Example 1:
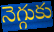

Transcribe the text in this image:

నెగ్గుకు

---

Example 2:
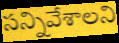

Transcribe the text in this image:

సన్నివేశాలని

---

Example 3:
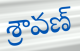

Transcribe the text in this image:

శ్రావణ్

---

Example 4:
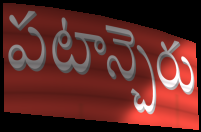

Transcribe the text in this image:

పటాన్చెరు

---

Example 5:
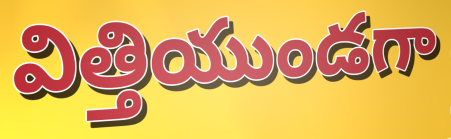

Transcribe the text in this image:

విత్తియుండగా